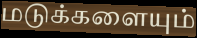
மடுக்களையும்